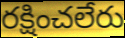
రక్షించలేరు